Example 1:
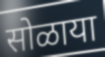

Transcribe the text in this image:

सोळाया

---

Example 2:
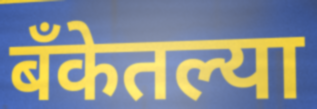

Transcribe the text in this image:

बँकेतल्या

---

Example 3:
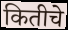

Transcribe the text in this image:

कितीचे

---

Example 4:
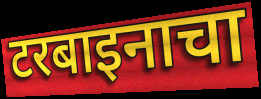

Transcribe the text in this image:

टरबाइनाचा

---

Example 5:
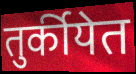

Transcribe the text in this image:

तुर्कीयेत